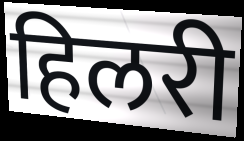
हिलरी